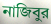
নাজিবুর